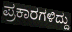
ಪ್ರಕಾರಗಳಿದ್ದು